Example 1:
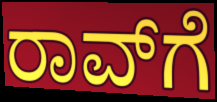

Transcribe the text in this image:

ರಾವ್‌ಗೆ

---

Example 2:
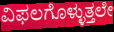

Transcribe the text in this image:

ವಿಫಲಗೊಳ್ಳುತ್ತಲೇ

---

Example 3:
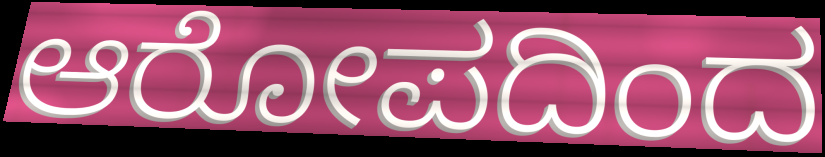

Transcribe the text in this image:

ಆರೋಪದಿಂದ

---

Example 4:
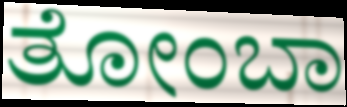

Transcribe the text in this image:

ತೋಂಬಾ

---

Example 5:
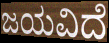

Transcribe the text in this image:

ಜಯವಿದೆ